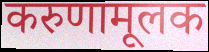
करुणामूलक